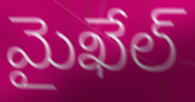
మైఖేల్